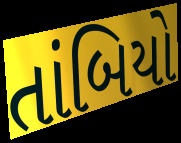
તાંબિયો